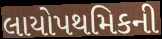
લાયોપથમિકની